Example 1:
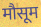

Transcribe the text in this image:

मौसूम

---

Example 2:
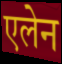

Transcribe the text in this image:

एलेन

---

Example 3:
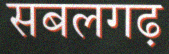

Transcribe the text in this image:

सबलगढ़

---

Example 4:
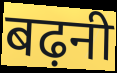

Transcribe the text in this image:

बढ़नी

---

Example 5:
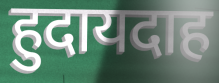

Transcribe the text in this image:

हुदायदाह